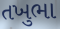
તખુભા